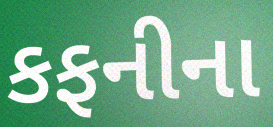
કફનીના